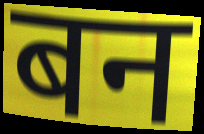
बन